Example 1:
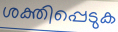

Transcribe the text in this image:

ശക്തിപ്പെടുക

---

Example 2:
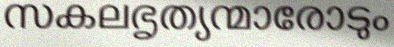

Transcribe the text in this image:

സകലഭൃത്യന്മാരോടും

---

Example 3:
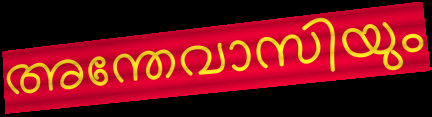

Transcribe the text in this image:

അന്തേവാസിയും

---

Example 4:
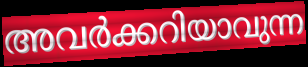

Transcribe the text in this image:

അവർക്കറിയാവുന്ന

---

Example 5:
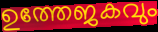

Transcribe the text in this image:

ഉത്തേജകവും